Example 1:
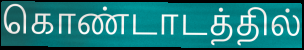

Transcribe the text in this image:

கொண்டாடத்தில்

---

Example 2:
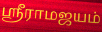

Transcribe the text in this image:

ஸ்ரீராமஜயம்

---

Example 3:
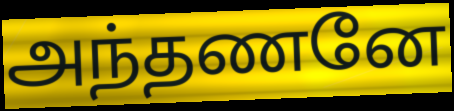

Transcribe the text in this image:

அந்தணனே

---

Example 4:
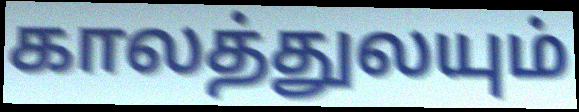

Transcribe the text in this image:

காலத்துலயும்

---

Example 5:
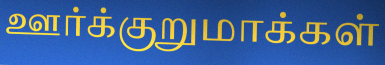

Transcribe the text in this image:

ஊர்க்குறுமாக்கள்